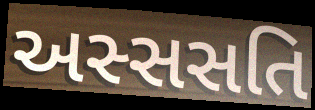
અસ્સસતિ